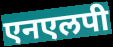
एनएलपी